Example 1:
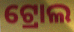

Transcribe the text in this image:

ଟ୍ରୋଲ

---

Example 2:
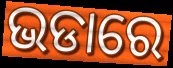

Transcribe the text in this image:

ଭଡାରେ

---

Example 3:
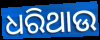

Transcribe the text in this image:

ଧରିଥାଉ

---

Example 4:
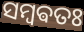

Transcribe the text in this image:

ସମ୍ବଵତଃ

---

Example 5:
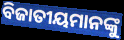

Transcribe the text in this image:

ବିଜାତୀୟମାନଙ୍କୁ